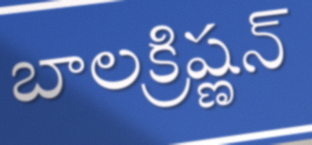
బాలక్రిష్ణన్